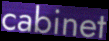
cabinet